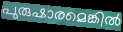
പുരുഷാരമെങ്കിൽ